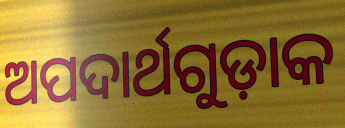
ଅପଦାର୍ଥଗୁଡ଼ାକ